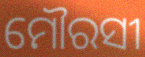
ମୌରସୀ